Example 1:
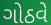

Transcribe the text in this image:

ગોઠવે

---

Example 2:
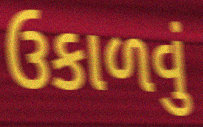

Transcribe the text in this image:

ઉકાળવું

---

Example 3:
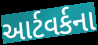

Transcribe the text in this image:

આર્ટવર્કના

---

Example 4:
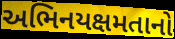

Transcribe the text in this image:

અભિનયક્ષમતાનો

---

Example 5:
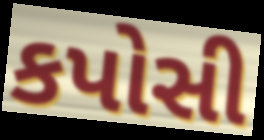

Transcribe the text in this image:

કપોસી